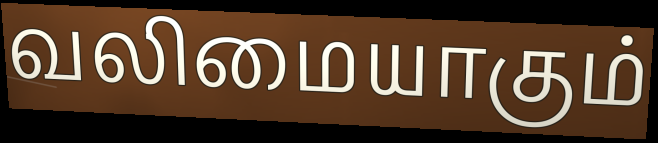
வலிமையாகும்